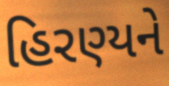
હિરણ્યને